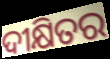
ଦୀକ୍ଷିତର